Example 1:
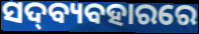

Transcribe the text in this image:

ସଦ୍‍ବ୍ୟବହାରରେ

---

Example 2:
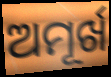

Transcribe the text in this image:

ଅମୂର୍ଖ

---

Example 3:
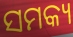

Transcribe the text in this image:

ସମକ୍ୟ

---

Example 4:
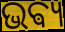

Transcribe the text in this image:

ଭଵ୍ୟ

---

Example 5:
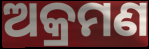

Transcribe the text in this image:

ଅକ୍ରମଣ